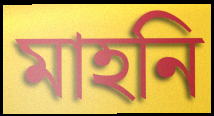
মাহনি